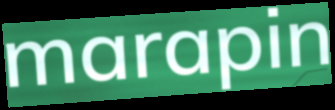
marapin